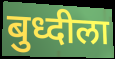
बुध्दीला